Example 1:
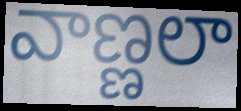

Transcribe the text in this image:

వాణ్ణలా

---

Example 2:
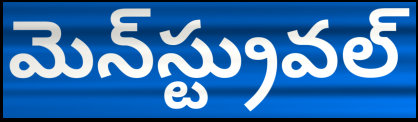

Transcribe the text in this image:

మెన్‌స్ట్రువల్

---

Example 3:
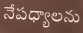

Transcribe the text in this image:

నేపధ్యాలను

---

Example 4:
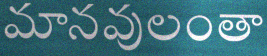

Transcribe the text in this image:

మానవులంతా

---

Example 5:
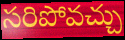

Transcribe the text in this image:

సరిపోవచ్చు